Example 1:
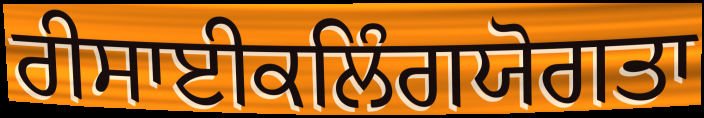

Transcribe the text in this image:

ਰੀਸਾਈਕਲਿੰਗਯੋਗਤਾ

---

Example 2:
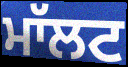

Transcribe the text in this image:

ਮਾੱਲਟ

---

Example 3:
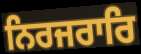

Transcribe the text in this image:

ਨਿਰਜਰਾਰਿ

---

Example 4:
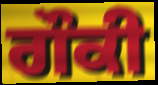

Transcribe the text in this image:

ਗੌਕੀ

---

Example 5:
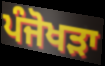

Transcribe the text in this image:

ਪੰਜੋਖੜਾ